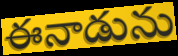
ఈనాడును